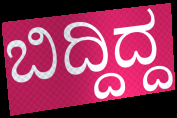
ಬಿದ್ದಿದ್ದ